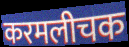
करमलीचक